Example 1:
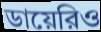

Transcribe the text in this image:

ডায়েরিও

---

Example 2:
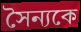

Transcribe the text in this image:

সৈন্যকে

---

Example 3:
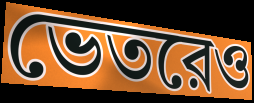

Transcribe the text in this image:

ভেতরেও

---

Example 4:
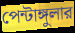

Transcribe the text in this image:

পেন্টাঙ্গুলার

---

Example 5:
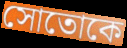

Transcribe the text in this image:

সোতোকে